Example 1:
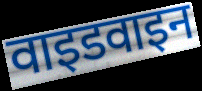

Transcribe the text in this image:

वाइडवाइन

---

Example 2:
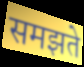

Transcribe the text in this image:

समझते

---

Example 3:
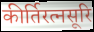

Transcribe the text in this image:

कीर्तिरत्नसूरि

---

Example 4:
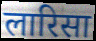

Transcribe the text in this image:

लारिसा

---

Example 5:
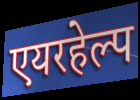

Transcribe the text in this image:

एयरहेल्प